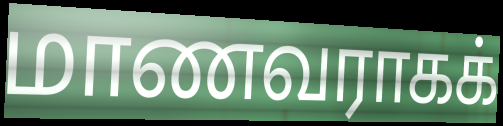
மாணவராகக்